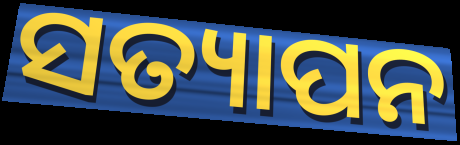
ସତ୍ୟାପନ